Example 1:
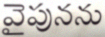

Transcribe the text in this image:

వైపునను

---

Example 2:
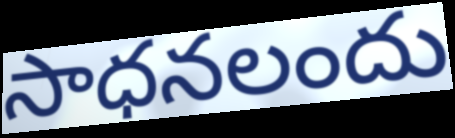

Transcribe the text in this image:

సాధనలందు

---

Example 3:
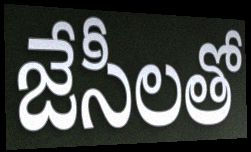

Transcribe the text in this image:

జేసీలతో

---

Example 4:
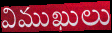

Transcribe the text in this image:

విముఖులు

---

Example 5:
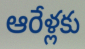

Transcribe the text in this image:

ఆరేళ్లకు